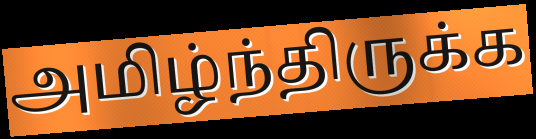
அமிழ்ந்திருக்க